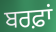
ਬਰਫ਼ਾਂ